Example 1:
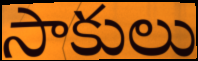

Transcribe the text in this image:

సాకులు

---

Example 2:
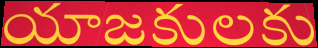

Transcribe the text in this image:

యాజకులకు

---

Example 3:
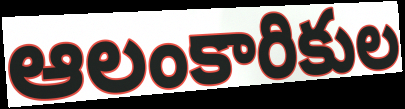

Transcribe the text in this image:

ఆలంకారికుల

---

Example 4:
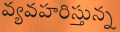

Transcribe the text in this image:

వ్యవహరిస్తున్న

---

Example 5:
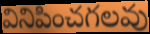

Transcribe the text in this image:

వినిపించగలవు